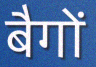
बैगों